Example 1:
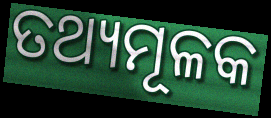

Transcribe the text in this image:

ତଥ୍ୟମୂଳକ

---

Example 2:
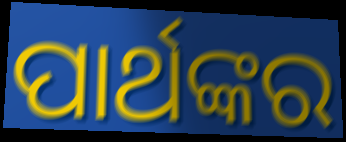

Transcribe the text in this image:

ପାର୍ଥଙ୍କର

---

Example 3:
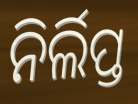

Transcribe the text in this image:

ନିର୍ଲିପ୍ତ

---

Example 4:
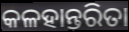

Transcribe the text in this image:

କଳହାନ୍ତରିତା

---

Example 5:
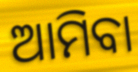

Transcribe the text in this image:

ଆମିବା